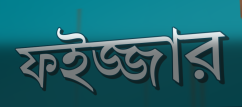
ফইজ্জার